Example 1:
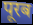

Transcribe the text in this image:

पूरब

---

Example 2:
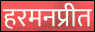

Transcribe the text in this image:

हरमनप्रीत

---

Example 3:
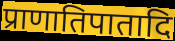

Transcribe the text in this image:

प्राणातिपातादि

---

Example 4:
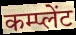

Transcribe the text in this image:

कम्प्लेंट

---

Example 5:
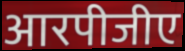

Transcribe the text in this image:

आरपीजीए